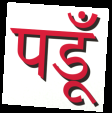
पडूँ